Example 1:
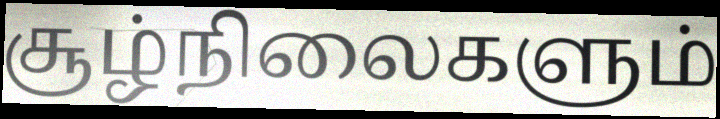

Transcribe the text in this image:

சூழ்நிலைகளும்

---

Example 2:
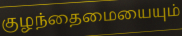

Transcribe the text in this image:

குழந்தைமையையும்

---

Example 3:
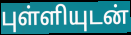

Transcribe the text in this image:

புள்ளியுடன்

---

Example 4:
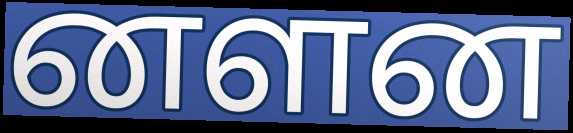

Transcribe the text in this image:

னளன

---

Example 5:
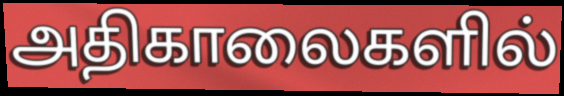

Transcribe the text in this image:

அதிகாலைகளில்